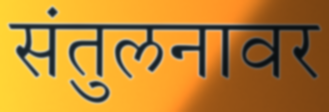
संतुलनावर